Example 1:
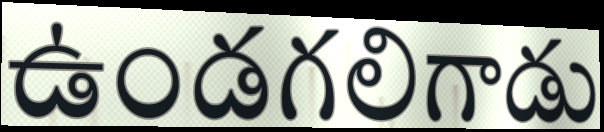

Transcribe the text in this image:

ఉండగలిగాడు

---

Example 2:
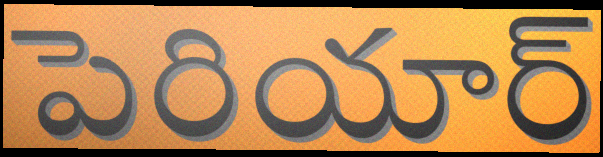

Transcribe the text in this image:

పెరియార్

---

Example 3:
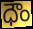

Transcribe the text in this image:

ధౌం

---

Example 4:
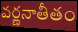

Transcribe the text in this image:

వర్ణనాతీతం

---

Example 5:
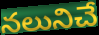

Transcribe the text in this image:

నలునిచే